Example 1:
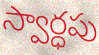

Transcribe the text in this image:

స్వార్ధపు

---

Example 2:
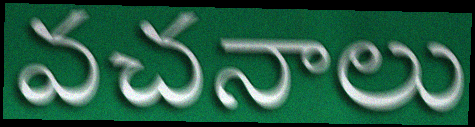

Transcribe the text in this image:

వచనాలు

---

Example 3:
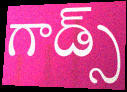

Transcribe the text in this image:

గాడ్స్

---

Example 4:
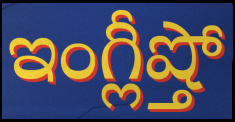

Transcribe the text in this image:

ఇంగ్లీష్తో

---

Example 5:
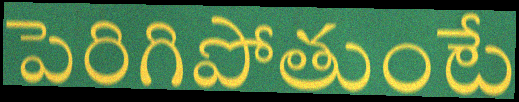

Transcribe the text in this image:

పెరిగిపోతుంటే